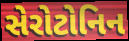
સેરોટોનિન